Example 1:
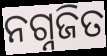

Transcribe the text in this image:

ନଗ୍ନଜିତ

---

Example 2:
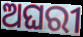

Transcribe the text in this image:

ଅଘରୀ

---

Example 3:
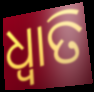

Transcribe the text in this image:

ଧ୍ବାତି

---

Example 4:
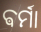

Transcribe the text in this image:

ଵର୍ମା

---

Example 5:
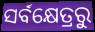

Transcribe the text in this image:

ସର୍ବକ୍ଷେତ୍ରରୁ